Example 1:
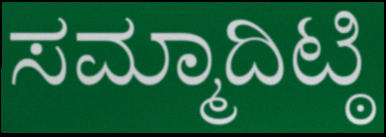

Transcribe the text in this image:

ಸಮ್ಮಾದಿಟ್ಠಿ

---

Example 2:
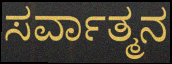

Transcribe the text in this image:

ಸರ್ವಾತ್ಮನ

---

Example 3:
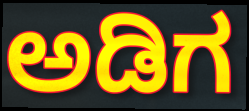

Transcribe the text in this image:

ಅಡಿಗ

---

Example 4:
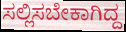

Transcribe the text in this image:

ಸಲ್ಲಿಸಬೇಕಾಗಿದ್ದ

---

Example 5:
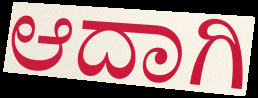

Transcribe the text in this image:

ಆದಾಗಿ